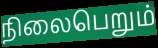
நிலைபெறும்